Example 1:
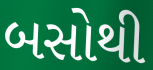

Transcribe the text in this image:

બસોથી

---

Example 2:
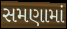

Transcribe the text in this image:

સમણામાં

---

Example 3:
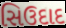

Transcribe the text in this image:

સિઉદાદ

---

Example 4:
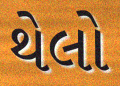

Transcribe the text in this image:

થેલો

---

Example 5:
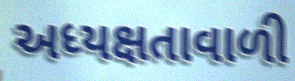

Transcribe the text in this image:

અધ્યક્ષતાવાળી